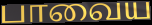
பாவைய